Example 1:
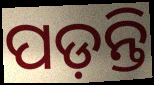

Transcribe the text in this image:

ପଡ଼ନ୍ତି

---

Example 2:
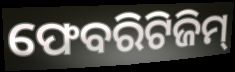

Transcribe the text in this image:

ଫେବରିଟିଜିମ୍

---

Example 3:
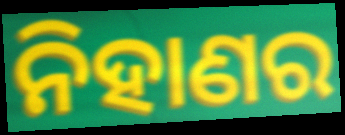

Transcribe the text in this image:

ନିହାଣର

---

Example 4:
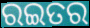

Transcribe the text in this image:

ରଇତର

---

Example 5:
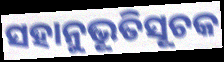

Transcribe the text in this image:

ସହାନୁଭୂତିସୂଚକ